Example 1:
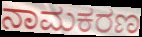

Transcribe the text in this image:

ನಾಮಕರಣ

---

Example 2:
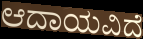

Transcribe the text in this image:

ಆದಾಯವಿದೆ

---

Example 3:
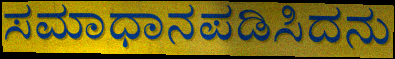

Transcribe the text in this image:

ಸಮಾಧಾನಪಡಿಸಿದನು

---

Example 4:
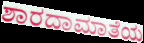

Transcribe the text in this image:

ಶಾರದಾಮಾತೆಯ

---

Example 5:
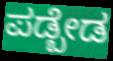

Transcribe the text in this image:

ಪಡ್ಬೇಡ